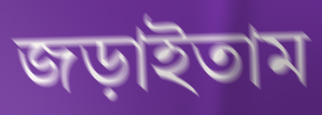
জড়াইতাম